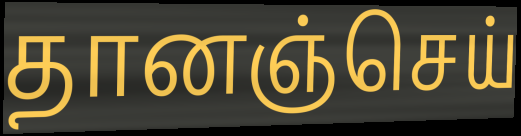
தானஞ்செய்